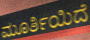
ಮೂರ್ತಿಯಿದೆ